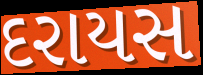
દરાયસ